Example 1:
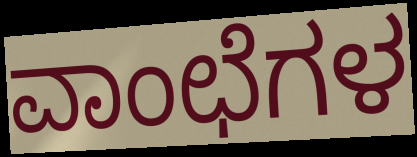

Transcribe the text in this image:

ವಾಂಛೆಗಳ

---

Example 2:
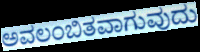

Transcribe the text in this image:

ಅವಲಂಬಿತವಾಗುವುದು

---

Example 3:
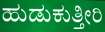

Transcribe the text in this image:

ಹುಡುಕುತ್ತೀರಿ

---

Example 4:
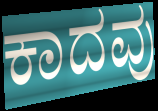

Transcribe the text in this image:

ಕಾದವು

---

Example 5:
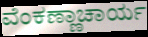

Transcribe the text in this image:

ವೆಂಕಣ್ಣಾಚಾರ್ಯ